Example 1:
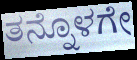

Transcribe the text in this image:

ತನ್ನೊಳಗೇ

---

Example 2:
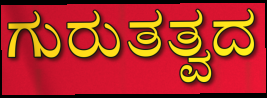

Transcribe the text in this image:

ಗುರುತತ್ವದ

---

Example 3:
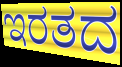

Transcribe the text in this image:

ಇರತದ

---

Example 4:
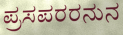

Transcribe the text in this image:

ಪ್ರಸಪರರನುನ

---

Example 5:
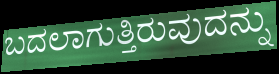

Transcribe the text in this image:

ಬದಲಾಗುತ್ತಿರುವುದನ್ನು